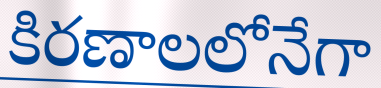
కిరణాలలోనేగా